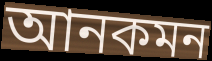
আনকমন